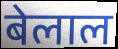
बेलाल